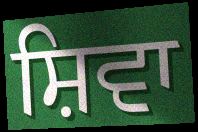
ਸ਼ਿਵਾ